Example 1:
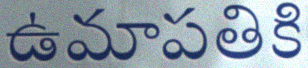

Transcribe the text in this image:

ఉమాపతికి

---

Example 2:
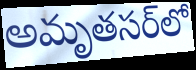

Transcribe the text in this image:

అమృతసర్‌లో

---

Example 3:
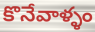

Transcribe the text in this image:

కొనేవాళ్ళం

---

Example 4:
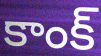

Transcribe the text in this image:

కాంక్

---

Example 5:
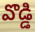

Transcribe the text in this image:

వొడ్డి